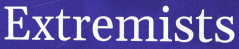
Extremists